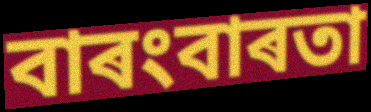
বাৰংবাৰতা